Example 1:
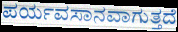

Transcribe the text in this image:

ಪರ್ಯವಸಾನವಾಗುತ್ತದೆ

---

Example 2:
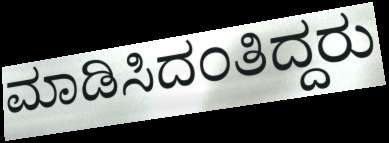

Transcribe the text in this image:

ಮಾಡಿಸಿದಂತಿದ್ದರು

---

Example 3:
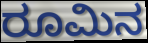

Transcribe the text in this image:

ರೂಮಿನ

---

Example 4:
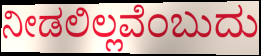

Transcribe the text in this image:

ನೀಡಲಿಲ್ಲವೆಂಬುದು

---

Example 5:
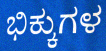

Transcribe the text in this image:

ಭಿಕ್ಕುಗಳ